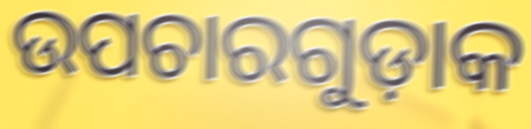
ଉପଚାରଗୁଡ଼ାକ